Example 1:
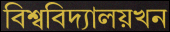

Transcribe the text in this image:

বিশ্ববিদ্যালয়খন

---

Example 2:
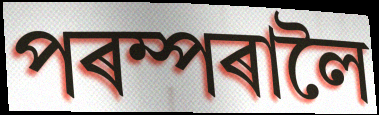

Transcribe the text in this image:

পৰম্পৰালৈ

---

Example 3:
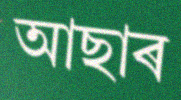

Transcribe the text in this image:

আছাৰ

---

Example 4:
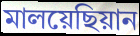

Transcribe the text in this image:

মালয়েছিয়ান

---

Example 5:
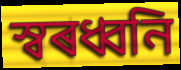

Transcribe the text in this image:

স্বৰধ্বনি